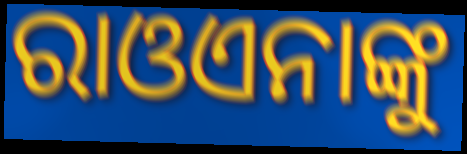
ରାଓଏନାଙ୍କୁ